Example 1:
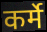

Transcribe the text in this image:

कर्मे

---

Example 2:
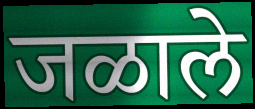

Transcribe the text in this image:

जळाले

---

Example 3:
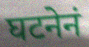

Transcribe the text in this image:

घटनेनं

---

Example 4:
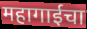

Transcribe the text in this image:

महागाईचा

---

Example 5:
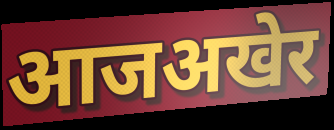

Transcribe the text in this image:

आजअखेर